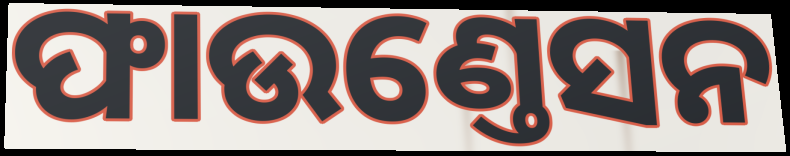
ଫାଉଣ୍ତେସନ